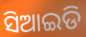
ସିଆଇଡି